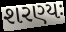
શરણ્યઃ